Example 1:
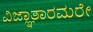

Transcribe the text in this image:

ವಿಜ್ಞಾತಾರಮರೇ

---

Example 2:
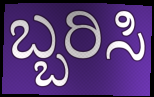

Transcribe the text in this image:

ಬ್ಬರಿಸಿ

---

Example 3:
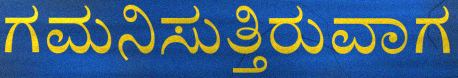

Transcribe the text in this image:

ಗಮನಿಸುತ್ತಿರುವಾಗ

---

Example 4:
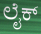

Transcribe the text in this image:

ಲೈಕ್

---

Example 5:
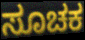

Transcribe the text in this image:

ಸೂಚಕ